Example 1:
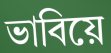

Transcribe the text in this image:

ভাবিয়ে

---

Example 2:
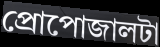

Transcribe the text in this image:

প্রোপোজালটা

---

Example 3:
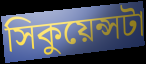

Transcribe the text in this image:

সিকুয়েন্সটা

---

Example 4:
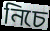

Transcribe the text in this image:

নিচে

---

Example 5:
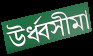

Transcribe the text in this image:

উর্ধ্বসীমা